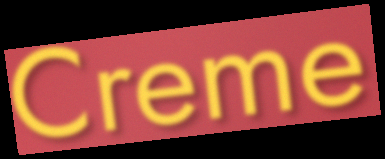
Creme